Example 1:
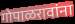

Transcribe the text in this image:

गोपाळरावांना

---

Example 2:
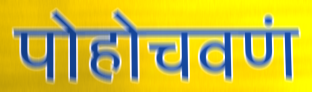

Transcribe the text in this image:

पोहोचवणं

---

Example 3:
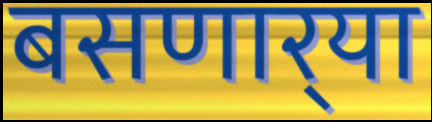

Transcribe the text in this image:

बसणार्‍या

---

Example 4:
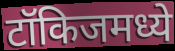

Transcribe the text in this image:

टॉकिजमध्ये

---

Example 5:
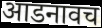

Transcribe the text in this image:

आडनावच